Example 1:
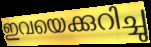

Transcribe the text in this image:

ഇവയെക്കുറിച്ചു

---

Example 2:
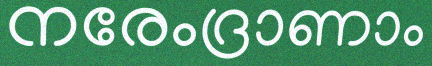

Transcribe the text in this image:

നരേംദ്രാണാം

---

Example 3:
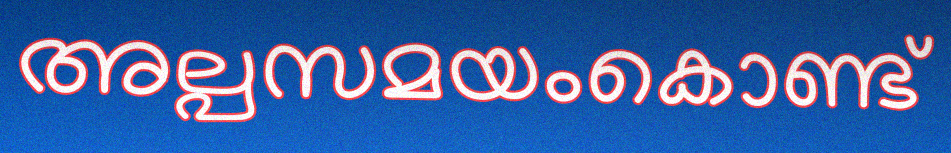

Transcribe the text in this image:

അല്പസമയംകൊണ്ട്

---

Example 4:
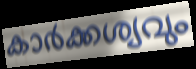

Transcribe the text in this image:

കാർക്കശ്യവും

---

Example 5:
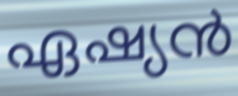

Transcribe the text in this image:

ഏഷ്യൻ